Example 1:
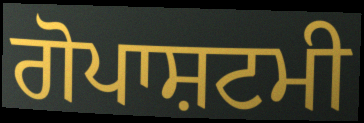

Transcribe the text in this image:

ਗੋਪਾਸ਼ਟਮੀ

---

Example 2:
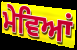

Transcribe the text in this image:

ਮੇਵਿਆਂ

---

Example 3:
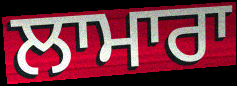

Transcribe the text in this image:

ਲਾਮਾਰਾ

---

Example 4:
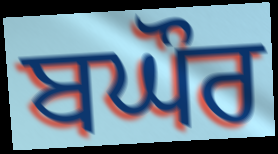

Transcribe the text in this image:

ਬਘੌਰ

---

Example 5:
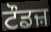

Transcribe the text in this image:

ਟੌਡਜ਼